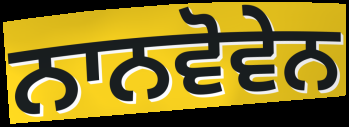
ਨਾਨਵੋਵੇਨ